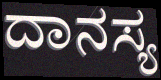
ದಾನಸ್ಯ